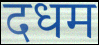
दधम